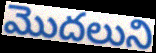
మొదలుని